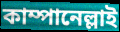
কাম্পানেল্লাই